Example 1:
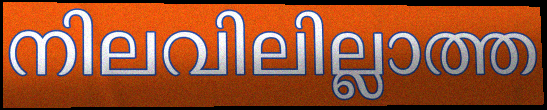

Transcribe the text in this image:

നിലവിലില്ലാത്ത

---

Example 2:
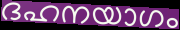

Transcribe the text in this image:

ദഹനയാഗം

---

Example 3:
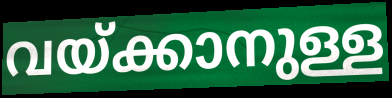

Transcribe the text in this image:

വയ്ക്കാനുള്ള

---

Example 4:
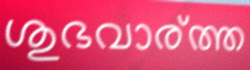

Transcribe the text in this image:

ശുഭവാര്ത്ത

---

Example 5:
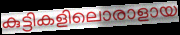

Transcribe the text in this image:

കുട്ടികളിലൊരാളായ